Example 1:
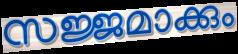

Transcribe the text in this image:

സജ്ജമാക്കും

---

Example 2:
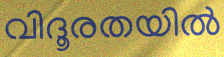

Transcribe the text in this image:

വിദൂരതയിൽ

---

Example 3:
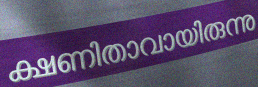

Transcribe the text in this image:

ക്ഷണിതാവായിരുന്നു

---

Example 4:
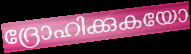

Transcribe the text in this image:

ദ്രോഹിക്കുകയോ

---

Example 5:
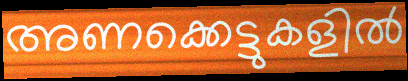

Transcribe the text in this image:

അണക്കെട്ടുകളിൽ